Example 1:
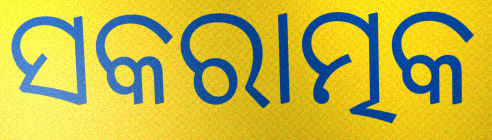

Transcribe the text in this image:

ସକରାତ୍ମକ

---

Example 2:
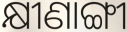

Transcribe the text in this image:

କ୍ଷୀଣାଙ୍ଗୀ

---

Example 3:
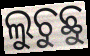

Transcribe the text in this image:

ଲୁଚୁଛୁ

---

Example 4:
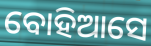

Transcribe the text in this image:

ବୋହିଆସେ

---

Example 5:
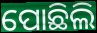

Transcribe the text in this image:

ପୋଛିଲି